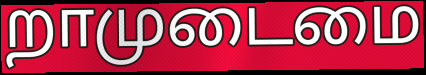
றாமுடைமை